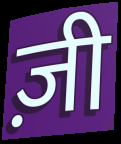
ज़ी